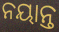
ନୟାନ୍ତ